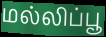
மல்லிப்பூ